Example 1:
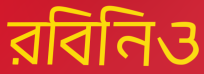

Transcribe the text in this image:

রবিনিও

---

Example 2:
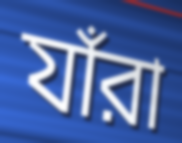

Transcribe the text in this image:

যাঁরা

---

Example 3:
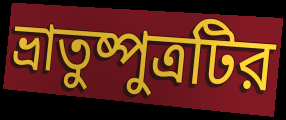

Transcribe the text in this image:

ভ্রাতুষ্পুত্রটির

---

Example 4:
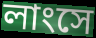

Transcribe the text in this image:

লাংসে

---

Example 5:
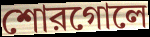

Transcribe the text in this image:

শোরগোলে